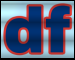
df